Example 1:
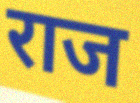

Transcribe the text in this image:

राज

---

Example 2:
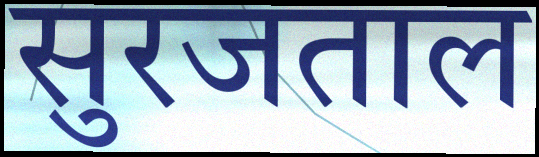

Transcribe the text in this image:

सुरजताल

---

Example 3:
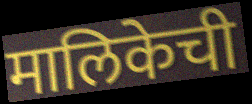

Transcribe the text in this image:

मालिकेची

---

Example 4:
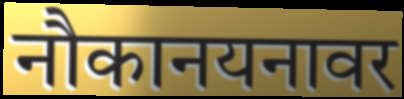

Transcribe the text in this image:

नौकानयनावर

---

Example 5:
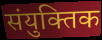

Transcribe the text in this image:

संयुक्‍तिक